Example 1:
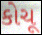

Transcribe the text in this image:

કોચૂ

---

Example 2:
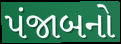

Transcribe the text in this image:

પંજાબનો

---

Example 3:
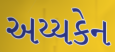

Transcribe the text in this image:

અય્યકેન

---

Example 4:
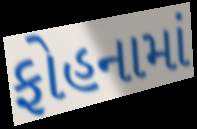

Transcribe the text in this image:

ફોહનામાં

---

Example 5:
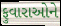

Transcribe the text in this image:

ફુવારાઓને